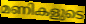
മണികളുടെ